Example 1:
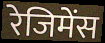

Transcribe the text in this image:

रेजिमेंस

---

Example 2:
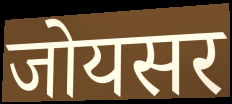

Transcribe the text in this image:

जोयसर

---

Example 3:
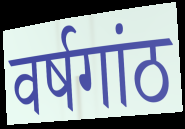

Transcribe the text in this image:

वर्षगांठ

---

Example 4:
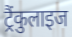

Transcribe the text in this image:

ट्रैंकुलाइज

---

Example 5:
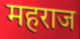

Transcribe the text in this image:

महराज